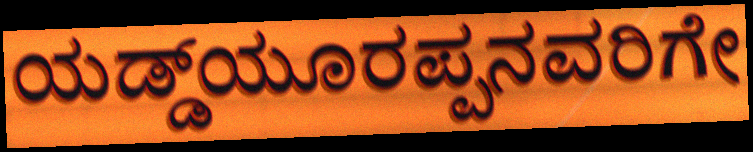
ಯಡ್ಡ್‌ಯೂರಪ್ಪನವರಿಗೇ